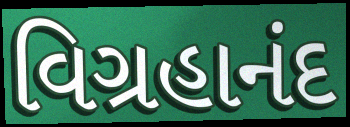
વિગ્રહાનંદ